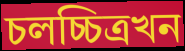
চলচ্চিত্ৰখন